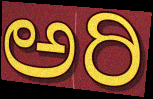
ಅರಿ